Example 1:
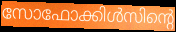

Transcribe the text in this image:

സോഫോക്കിൾസിന്റെ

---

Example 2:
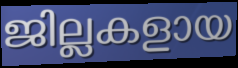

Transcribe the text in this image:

ജില്ലകളായ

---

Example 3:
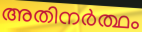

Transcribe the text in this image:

അതിനർത്ഥം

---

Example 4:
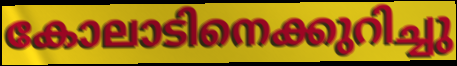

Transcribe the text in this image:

കോലാടിനെക്കുറിച്ചു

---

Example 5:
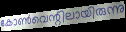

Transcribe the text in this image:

കോൺവെന്റിലായിരുന്നു